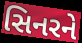
સિનરને